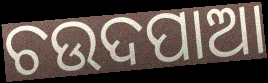
ଚଉଦପାଆ